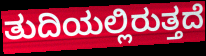
ತುದಿಯಲ್ಲಿರುತ್ತದೆ